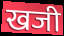
खजी